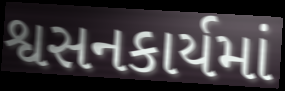
શ્વસનકાર્યમાં